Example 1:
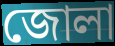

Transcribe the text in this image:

জোলা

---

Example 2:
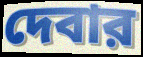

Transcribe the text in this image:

দেবার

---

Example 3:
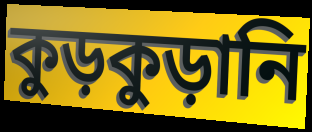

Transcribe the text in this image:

কুড়কুড়ানি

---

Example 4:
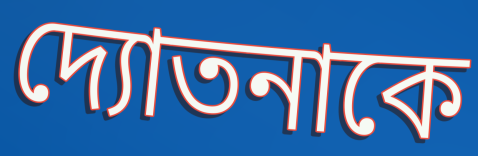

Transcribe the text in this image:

দ্যোতনাকে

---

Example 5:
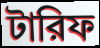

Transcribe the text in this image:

টারিফ